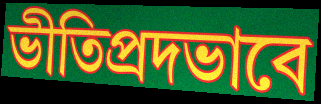
ভীতিপ্রদভাবে